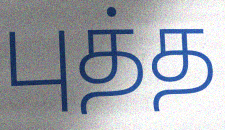
புத்த